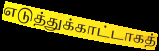
எடுத்துக்காட்டாகத்